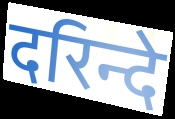
दरिन्दे